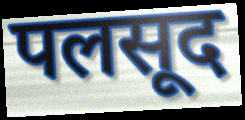
पलसूद